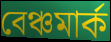
বেঞ্চমার্ক